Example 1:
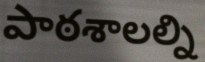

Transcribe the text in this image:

పాఠశాలల్ని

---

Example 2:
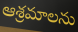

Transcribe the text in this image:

ఆశ్రమాలను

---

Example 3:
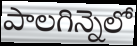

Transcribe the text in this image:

పాలగిన్నెలో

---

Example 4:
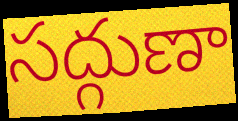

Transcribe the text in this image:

సద్గుణా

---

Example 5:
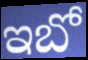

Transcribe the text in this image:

ఇబో